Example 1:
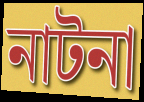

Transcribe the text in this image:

নাটনা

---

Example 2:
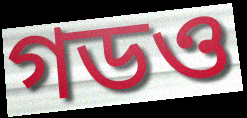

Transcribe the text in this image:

গডও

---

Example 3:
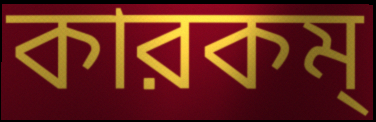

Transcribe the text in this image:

কারকম্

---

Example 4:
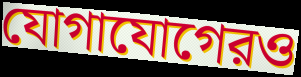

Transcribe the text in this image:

যোগাযোগেরও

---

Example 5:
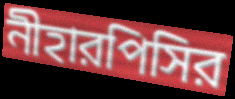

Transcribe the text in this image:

নীহারপিসির